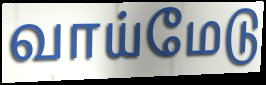
வாய்மேடு